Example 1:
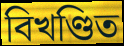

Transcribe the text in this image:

বিখণ্ডিত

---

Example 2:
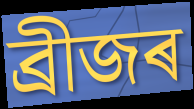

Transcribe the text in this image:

ব্ৰীজৰ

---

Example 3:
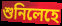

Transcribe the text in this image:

শুনিলেহে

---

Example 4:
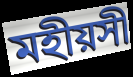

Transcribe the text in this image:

মহীয়সী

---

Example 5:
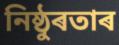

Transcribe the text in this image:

নিষ্ঠুৰতাৰ